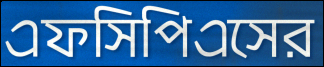
এফসিপিএসের